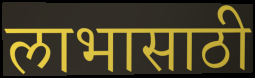
लाभासाठी